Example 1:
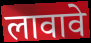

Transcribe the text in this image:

लावावे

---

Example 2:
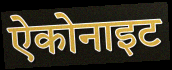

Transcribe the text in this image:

ऐकोनाइट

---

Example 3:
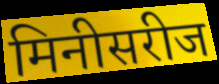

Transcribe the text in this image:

मिनीसरीज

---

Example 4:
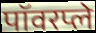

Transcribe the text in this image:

पॉवरप्ले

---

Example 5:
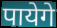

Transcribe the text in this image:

पायेगे